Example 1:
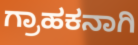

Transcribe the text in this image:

ಗ್ರಾಹಕನಾಗಿ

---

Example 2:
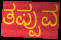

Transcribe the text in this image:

ತಪ್ಪುವ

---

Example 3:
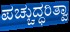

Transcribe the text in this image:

ಪಚ್ಚುದ್ಧರಿತ್ವಾ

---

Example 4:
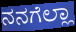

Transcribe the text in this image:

ನನಗೆಲ್ಲಾ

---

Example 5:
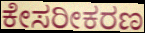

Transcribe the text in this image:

ಕೇಸರೀಕರಣ